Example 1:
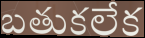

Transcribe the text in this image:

బతుకలేక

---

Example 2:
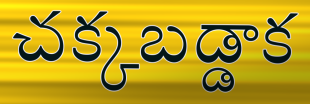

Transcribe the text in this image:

చక్కబడ్డాక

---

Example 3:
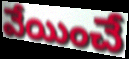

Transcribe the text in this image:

వేయించే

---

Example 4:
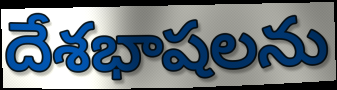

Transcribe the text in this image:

దేశభాషలను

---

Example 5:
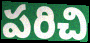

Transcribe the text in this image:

పరిచి